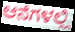
ಆನೆಗಳಲ್ಲಿ